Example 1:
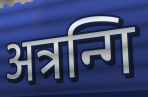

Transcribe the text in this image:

अत्रन्गि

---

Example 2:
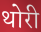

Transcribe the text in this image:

थोरी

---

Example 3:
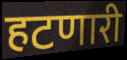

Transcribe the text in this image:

हटणारी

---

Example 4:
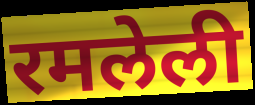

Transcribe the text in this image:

रमलेली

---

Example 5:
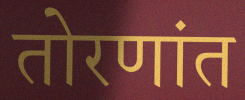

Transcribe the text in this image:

तोरणांत